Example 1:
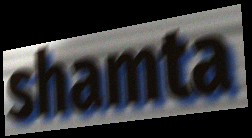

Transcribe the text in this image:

shamta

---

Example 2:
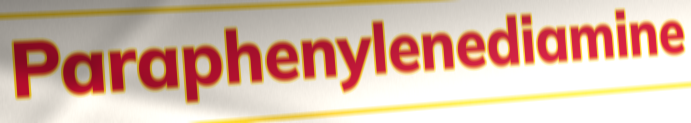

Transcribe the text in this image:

Paraphenylenediamine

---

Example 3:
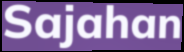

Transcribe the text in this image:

Sajahan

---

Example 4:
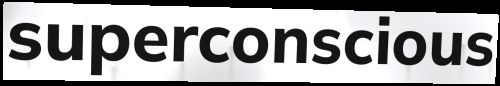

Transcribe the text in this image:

superconscious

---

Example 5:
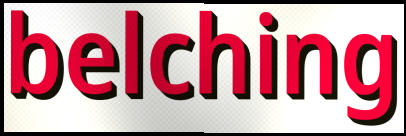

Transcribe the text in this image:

belching